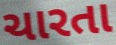
ચારતા